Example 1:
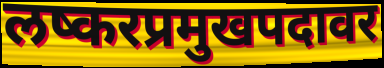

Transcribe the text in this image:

लष्करप्रमुखपदावर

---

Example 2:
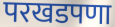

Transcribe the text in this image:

परखडपणा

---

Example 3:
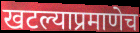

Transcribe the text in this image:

खटल्याप्रमाणेच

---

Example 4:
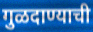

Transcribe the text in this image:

गुळदाण्याची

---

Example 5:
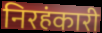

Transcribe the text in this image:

निरहंकारी